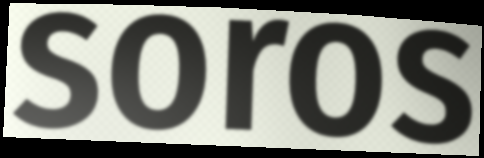
soros